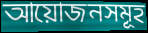
আয়োজনসমূহ